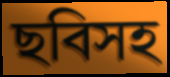
ছবিসহ